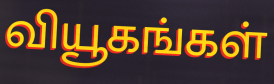
வியூகங்கள்